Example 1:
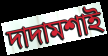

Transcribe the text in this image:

দাদামশাই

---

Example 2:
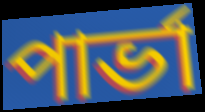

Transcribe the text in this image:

পার্ভা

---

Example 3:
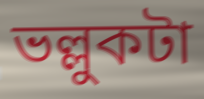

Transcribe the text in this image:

ভল্লুকটা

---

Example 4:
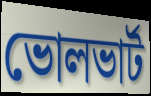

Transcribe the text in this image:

ভোলভার্ট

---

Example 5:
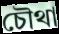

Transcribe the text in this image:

চৌথা